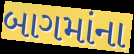
બાગમાંના